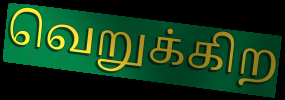
வெறுக்கிற